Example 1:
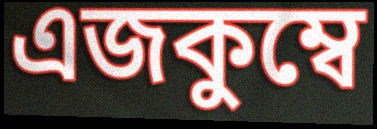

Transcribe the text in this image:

এজকুম্বে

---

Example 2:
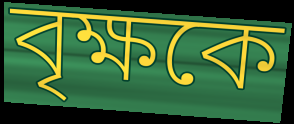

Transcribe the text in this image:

বৃক্ষকে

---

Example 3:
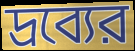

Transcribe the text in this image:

দ্রব্যের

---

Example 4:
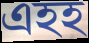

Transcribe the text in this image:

এহহ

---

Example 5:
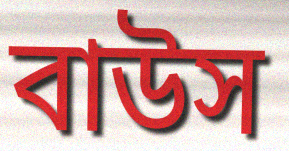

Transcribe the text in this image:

বাউস